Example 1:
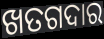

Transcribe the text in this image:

ଖତଗଦାର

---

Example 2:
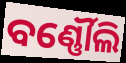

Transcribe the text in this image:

ବର୍ଣ୍ଣୌଲି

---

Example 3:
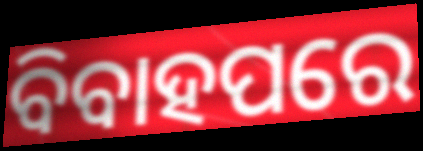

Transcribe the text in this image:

ବିବାହପରେ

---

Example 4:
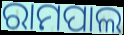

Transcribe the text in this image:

ରାମପାଲ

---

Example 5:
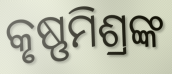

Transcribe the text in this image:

କୃଷ୍ଣମିଶ୍ରଙ୍କ